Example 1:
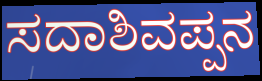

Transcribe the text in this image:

ಸದಾಶಿವಪ್ಪನ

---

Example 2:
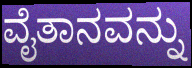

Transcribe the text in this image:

ವೈತಾನವನ್ನು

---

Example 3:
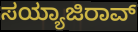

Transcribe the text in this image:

ಸಯ್ಯಾಜಿರಾವ್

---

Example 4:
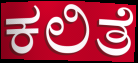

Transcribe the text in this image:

ಕಲಿತೆ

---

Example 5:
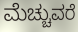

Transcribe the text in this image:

ಮೆಚ್ಚುವರೆ